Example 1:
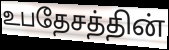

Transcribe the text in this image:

உபதேசத்தின்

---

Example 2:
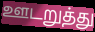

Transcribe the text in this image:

ஊடறுத்து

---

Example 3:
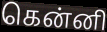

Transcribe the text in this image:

கென்னி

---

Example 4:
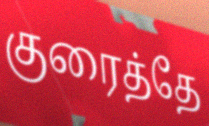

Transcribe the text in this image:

குரைத்தே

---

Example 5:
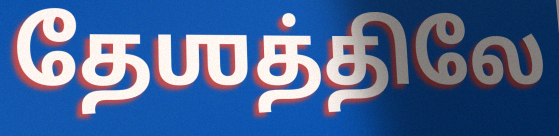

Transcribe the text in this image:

தேஶத்திலே